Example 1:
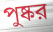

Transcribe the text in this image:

পুষ্কর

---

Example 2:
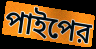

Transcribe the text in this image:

পাইপের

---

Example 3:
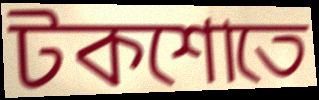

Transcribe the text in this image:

টকশোতে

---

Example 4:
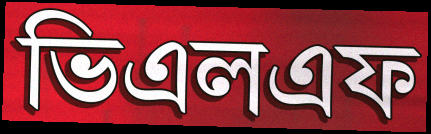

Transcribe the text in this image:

ভিএলএফ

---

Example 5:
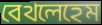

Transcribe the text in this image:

বেথলেহেম